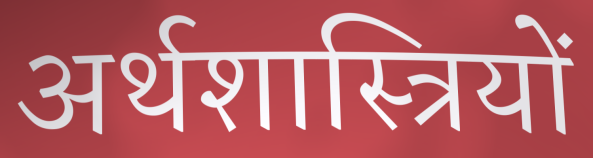
अर्थशास्त्रियों